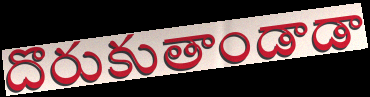
దొరుకుతాండాడా